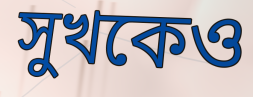
সুখকেও